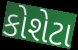
કોશેટા